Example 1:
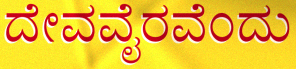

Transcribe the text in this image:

ದೇವವೈರವೆಂದು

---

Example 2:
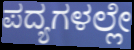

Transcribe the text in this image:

ಪದ್ಯಗಳಲ್ಲೇ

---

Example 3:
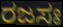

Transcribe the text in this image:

ರಜಸಃ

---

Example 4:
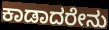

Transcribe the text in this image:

ಕಾಡಾದರೇನು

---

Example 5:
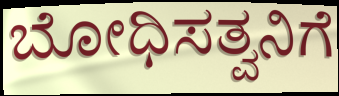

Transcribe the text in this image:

ಬೋಧಿಸತ್ವನಿಗೆ